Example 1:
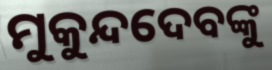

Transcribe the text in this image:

ମୁକୁନ୍ଦଦେବଙ୍କୁ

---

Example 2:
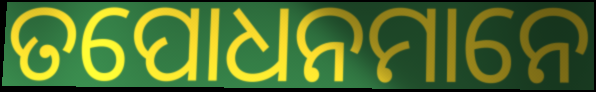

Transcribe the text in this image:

ତପୋଧନମାନେ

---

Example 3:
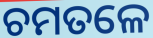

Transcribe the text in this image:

ଚମତଳେ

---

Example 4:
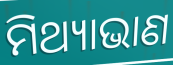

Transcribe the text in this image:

ମିଥ୍ୟାଭାଣ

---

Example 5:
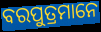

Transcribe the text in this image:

ବରପୁତ୍ରମାନେ